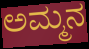
ಅಮ್ಮನ